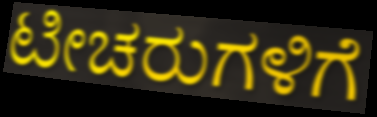
ಟೀಚರುಗಳಿಗೆ